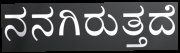
ನನಗಿರುತ್ತದೆ